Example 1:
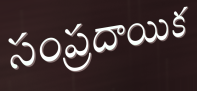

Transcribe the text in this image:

సంప్రదాయిక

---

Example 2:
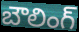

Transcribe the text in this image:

బౌలింగ్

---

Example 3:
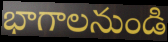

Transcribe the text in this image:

భాగాలనుండి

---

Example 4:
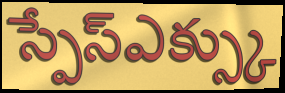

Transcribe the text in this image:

స్పేస్ఎక్స్కు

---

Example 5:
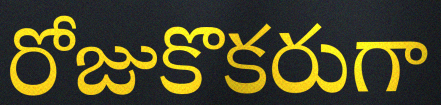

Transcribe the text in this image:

రోజుకొకరుగా